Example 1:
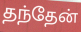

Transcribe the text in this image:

தந்தேன்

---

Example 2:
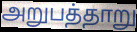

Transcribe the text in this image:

அறுபத்தாறு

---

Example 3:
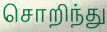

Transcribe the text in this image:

சொறிந்து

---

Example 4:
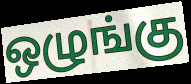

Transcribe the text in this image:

ஒழுங்கு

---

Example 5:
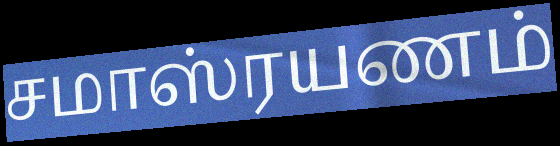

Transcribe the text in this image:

சமாஸ்ரயணம்